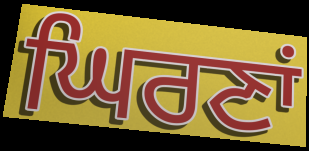
ਘਿਰਣਾਂ